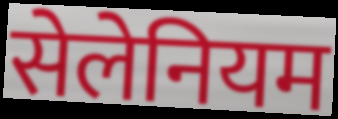
सेलेनियम